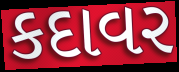
કદાવર